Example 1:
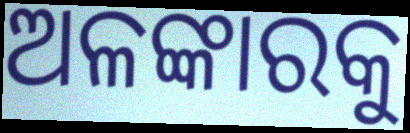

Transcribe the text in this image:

ଅଳଙ୍କାରକୁ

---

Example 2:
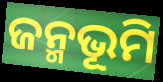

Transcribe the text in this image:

ଜନ୍ମଭୂମି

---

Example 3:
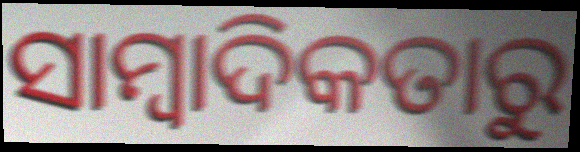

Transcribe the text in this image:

ସାମ୍ବାଦିକତାରୁ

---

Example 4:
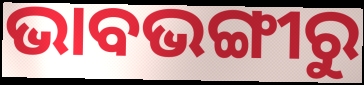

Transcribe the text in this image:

ଭାବଭଙ୍ଗୀରୁ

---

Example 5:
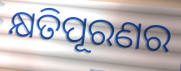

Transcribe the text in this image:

କ୍ଷତିପୂରଣର